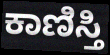
ಕಾಣಿಸ್ತಿ